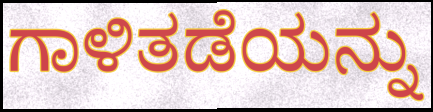
ಗಾಳಿತಡೆಯನ್ನು